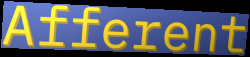
Afferent